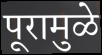
पूरामुळे